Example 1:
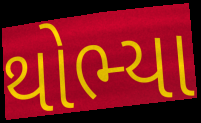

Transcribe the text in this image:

થોભ્યા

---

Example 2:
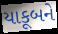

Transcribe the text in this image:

યાકૂબને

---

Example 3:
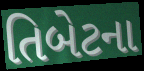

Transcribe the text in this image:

તિબેટના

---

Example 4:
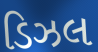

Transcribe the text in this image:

ડિઝલ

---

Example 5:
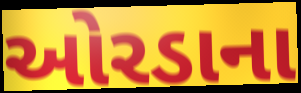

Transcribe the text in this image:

ઓરડાના